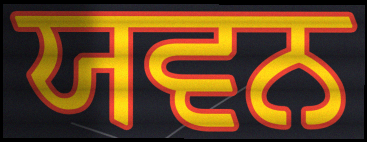
ਯਵਨ